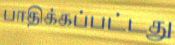
பாதிக்கப்பட்டது